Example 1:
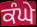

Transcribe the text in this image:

ਕੰਘੇ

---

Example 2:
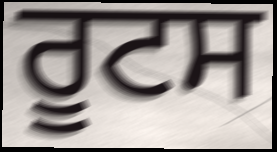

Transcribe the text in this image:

ਰੂਟਸ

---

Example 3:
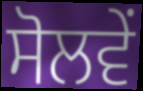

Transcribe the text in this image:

ਸੋਲਵੇਂ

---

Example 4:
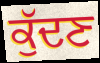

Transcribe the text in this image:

ਕੁੱਦਣ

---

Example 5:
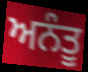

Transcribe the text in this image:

ਅਨੰਤੂ